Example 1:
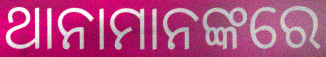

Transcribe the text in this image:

ଥାନାମାନଙ୍କରେ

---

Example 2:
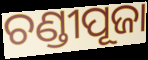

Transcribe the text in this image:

ଚଣ୍ଡୀପୂଜା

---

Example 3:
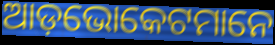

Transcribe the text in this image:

ଆଡ଼ଭୋକେଟମାନେ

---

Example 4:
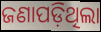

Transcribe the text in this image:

ଜଣାପଡ଼ିଥିଲା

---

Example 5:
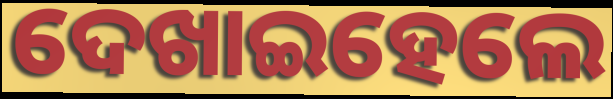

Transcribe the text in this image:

ଦେଖାଇହେଲେ